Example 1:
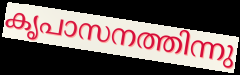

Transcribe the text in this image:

കൃപാസനത്തിന്നു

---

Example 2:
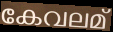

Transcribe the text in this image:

കേവലമ്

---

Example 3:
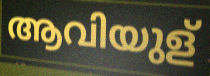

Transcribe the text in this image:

ആവിയുള്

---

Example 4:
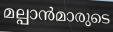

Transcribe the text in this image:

മല്പാൻമാരുടെ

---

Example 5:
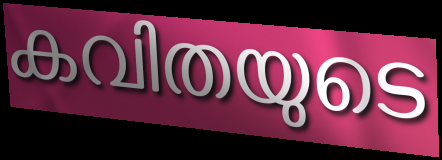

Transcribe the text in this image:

കവിതയുടെ